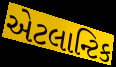
એટલાન્ટિક